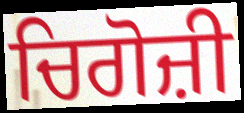
ਚਿਗੋਜ਼ੀ